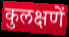
कुलक्षणें